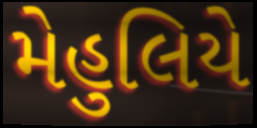
મેહુલિયે